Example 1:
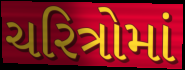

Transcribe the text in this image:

ચરિત્રોમાં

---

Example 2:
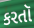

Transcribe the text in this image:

કરતૉ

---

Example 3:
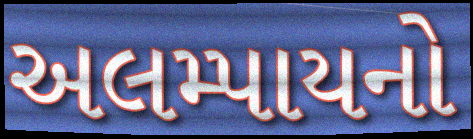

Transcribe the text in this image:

અલમ્પાયનો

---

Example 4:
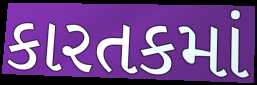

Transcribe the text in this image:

કારતકમાં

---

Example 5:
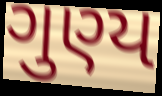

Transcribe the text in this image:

ગુણ્ય